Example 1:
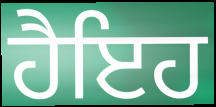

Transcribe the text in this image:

ਹੈਇਹ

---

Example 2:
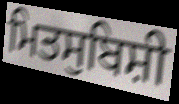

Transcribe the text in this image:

ਮਿਤਸੁਬਿਸ਼ੀ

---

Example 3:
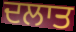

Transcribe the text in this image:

ਦਲਾਤ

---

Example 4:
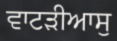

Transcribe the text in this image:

ਵਾਟੜੀਆਸੁ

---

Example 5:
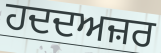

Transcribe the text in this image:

ਹਦਦਅਜ਼ਰ